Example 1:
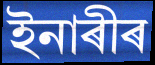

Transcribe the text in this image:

ইনাৰীৰ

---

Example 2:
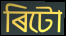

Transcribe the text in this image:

ৰিটো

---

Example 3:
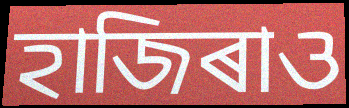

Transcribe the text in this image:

হাজিৰাও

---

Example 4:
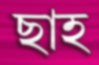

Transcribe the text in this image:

ছাহ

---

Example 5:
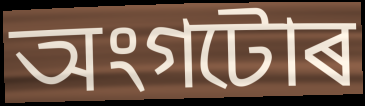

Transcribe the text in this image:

অংগটোৰ